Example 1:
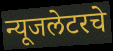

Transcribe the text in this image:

न्यूजलेटरचे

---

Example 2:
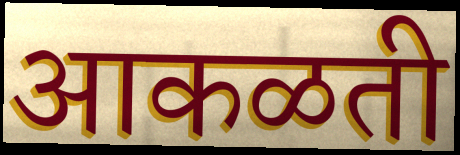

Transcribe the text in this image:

आकळती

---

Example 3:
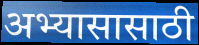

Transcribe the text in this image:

अभ्यासासाठी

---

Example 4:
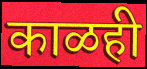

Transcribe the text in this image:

काळही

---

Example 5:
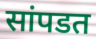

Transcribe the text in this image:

सांपडत